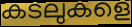
കടലുകളെ